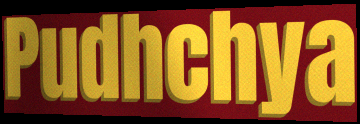
Pudhchya